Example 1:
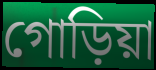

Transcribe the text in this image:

গোড়িয়া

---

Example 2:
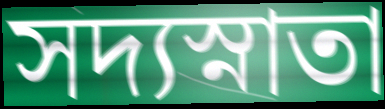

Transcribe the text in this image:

সদ্যস্নাতা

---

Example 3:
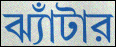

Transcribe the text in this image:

ঝ্যাঁটার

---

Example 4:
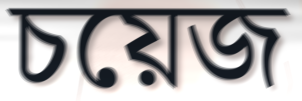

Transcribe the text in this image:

চয়েজ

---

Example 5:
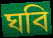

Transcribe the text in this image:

ঘবি